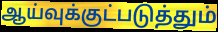
ஆய்வுக்குட்படுத்தும்